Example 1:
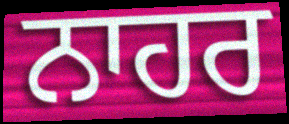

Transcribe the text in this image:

ਨਾਹਰ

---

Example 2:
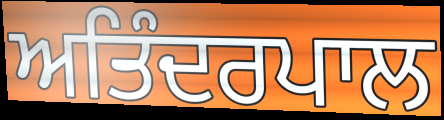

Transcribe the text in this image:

ਅਤਿੰਦਰਪਾਲ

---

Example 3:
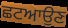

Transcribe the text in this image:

ਛਟਆਉਣ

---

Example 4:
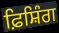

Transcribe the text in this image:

ਫ਼ਿਸ਼ਿੰਗ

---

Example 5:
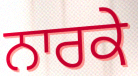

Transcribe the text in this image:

ਨਾਰਕੇ